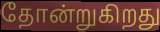
தோன்றுகிறது